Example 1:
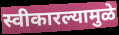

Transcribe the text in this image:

स्वीकारल्यामुळे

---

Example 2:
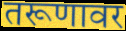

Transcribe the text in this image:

तरूणावर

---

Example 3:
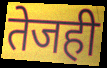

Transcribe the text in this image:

तेजही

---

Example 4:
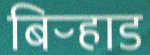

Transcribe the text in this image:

बिऱ्हाड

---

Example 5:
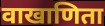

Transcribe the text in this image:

वाखाणिता